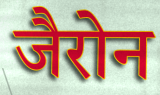
जैरोन